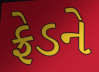
ફ્રેડને